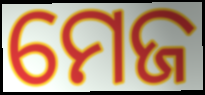
ମେଜ